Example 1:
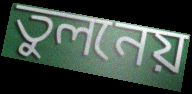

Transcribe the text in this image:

তুলনেয়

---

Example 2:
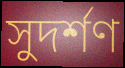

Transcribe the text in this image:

সুদর্শণ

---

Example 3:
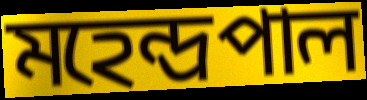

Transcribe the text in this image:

মহেন্দ্রপাল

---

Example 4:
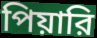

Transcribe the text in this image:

পিয়ারি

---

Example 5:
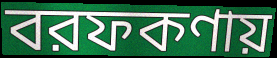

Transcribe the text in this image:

বরফকণায়